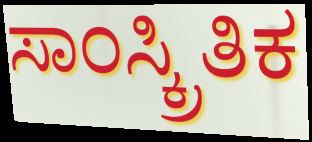
ಸಾಂಸ್ಕ್ರಿತಿಕ